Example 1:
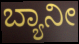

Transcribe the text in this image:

ಬ್ಯಾನೀ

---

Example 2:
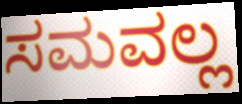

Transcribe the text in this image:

ಸಮವಲ್ಲ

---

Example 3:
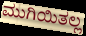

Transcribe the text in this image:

ಮುಗಿಯಿತಲ್ಲ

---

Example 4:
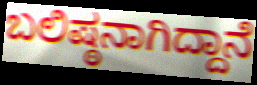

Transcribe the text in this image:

ಬಲಿಷ್ಠನಾಗಿದ್ದಾನೆ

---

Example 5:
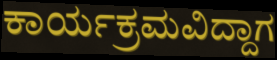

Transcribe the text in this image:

ಕಾರ್ಯಕ್ರಮವಿದ್ದಾಗ